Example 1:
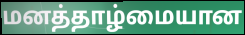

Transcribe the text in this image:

மனத்தாழ்மையான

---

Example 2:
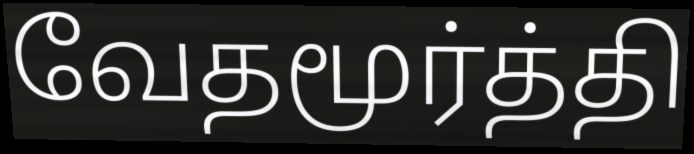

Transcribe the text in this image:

வேதமூர்த்தி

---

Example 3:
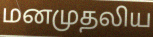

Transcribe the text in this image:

மனமுதலிய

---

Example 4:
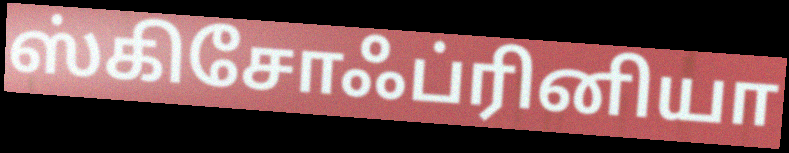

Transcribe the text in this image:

ஸ்கிசோஃப்ரினியா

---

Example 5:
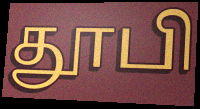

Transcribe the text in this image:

தூபி